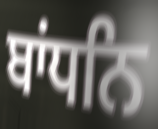
ਬਾਂਧਨਿ